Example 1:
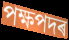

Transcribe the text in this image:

পক্ষপদৰ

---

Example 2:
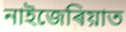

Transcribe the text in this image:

নাইজেৰিয়াত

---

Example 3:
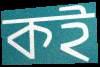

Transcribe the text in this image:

কই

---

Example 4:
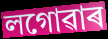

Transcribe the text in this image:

লগোৱাৰ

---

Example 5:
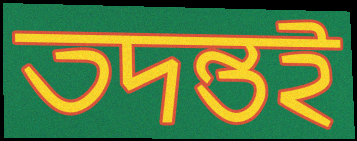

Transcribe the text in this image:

তদন্তই